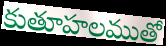
కుతూహలముతో